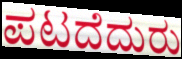
ಪಟದೆದುರು